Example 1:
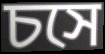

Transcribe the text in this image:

চসে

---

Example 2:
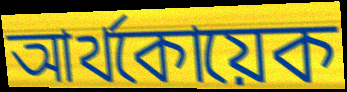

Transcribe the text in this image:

আর্থকোয়েক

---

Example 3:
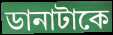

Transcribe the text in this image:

ডানাটাকে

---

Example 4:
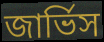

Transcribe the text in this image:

জার্ভিস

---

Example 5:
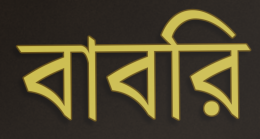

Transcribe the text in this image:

বাবরি